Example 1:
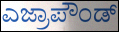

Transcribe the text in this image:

ಎಜ್ರಾಪೌಂಡ್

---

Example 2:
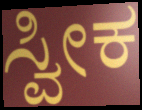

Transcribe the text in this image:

ಸ್ವೀಕ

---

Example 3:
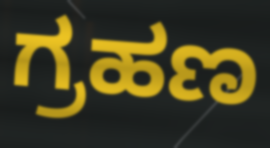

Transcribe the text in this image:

ಗ್ರಹಣ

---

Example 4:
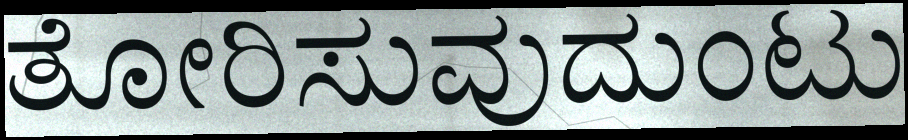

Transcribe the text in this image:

ತೋರಿಸುವುದುಂಟು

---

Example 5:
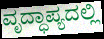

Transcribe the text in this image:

ವೃದ್ಧಾಪ್ಯದಲ್ಲಿ